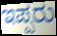
ಇಪ್ಪರು